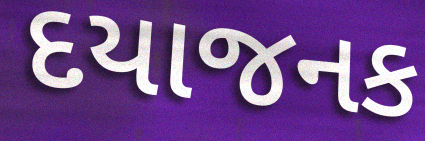
દયાજનક